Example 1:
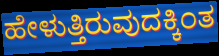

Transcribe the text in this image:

ಹೇಳುತ್ತಿರುವುದಕ್ಕಿಂತ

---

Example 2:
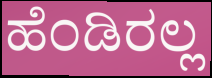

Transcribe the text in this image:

ಹೆಂಡಿರಲ್ಲ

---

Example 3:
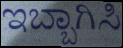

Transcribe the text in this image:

ಇಬ್ಬಾಗಿಸಿ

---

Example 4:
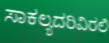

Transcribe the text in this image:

ಸಾಕಲ್ಯದರಿವಿರಲಿ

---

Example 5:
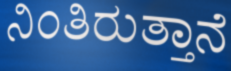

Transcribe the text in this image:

ನಿಂತಿರುತ್ತಾನೆ